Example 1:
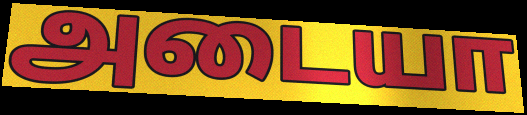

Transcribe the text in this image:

அடையா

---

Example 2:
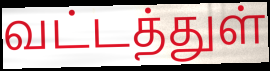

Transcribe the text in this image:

வட்டத்துள்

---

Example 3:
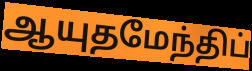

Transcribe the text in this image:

ஆயுதமேந்திப்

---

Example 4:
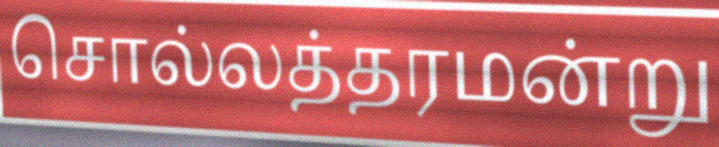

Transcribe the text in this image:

சொல்லத்தரமன்று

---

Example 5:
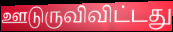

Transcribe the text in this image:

ஊடுருவிவிட்டது